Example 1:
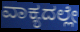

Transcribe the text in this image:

ವಾಕ್ಯದಲ್ಲೇ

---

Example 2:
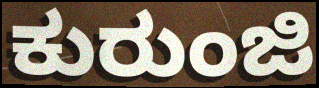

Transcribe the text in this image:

ಕುರುಂಜಿ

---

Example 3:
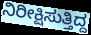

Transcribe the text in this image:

ನಿರೀಕ್ಷಿಸುತ್ತಿದ್ದ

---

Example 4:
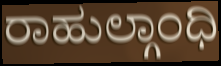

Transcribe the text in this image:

ರಾಹುಲ್ಗಾಂಧಿ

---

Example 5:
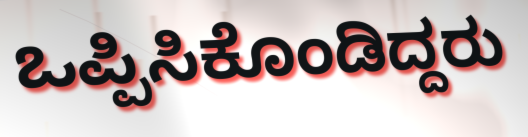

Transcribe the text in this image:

ಒಪ್ಪಿಸಿಕೊಂಡಿದ್ದರು